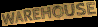
WAREHOUSE